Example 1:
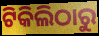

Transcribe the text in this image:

ଟିକିଲିଠାରୁ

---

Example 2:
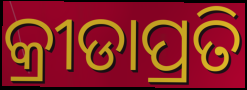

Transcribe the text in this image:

କ୍ରୀଡାପ୍ରତି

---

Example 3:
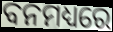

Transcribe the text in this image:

ବନମଧ୍ୟରେ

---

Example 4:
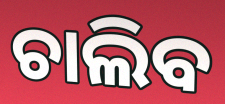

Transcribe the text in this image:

ଚାଲିବ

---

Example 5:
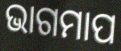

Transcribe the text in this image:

ଭାଗମାପ